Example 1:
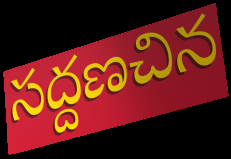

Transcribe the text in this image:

సద్దణచిన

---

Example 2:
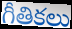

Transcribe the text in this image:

గీతికలు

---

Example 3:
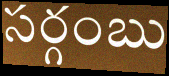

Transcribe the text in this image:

సర్గంబు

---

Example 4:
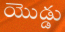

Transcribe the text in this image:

యొడ్డు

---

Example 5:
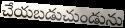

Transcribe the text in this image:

చేయబడుచుండును